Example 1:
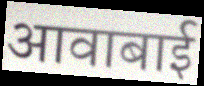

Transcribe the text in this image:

आवाबाई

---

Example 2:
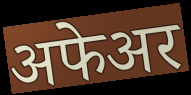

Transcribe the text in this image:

अफेअर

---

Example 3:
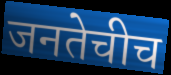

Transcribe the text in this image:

जनतेचीच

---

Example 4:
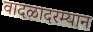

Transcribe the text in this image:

वादळादरम्यान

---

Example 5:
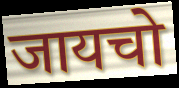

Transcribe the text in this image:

जायचो